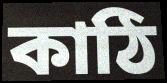
কাঠি